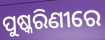
ପୁଷ୍କରିଣୀରେ